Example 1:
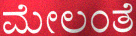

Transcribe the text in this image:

ಮೇಲಂತೆ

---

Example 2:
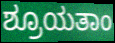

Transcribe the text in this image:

ಶ್ರೂಯತಾಂ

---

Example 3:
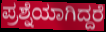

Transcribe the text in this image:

ಪ್ರಶ್ನೆಯಾಗಿದ್ದರೆ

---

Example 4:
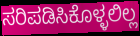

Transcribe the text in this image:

ಸರಿಪಡಿಸಿಕೊಳ್ಳಲಿಲ್ಲ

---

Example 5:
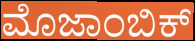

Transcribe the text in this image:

ಮೊಜಾಂಬಿಕ್